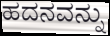
ಹದನವನ್ನು